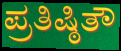
ಪ್ರತಿಷ್ಠಿತೌ